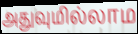
அதுவுமில்லாம